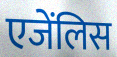
एजेंलिस